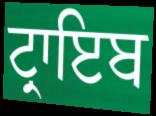
ਟ੍ਰਾਇਬ